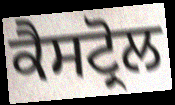
ਕੈਸਟ੍ਰੋਲ